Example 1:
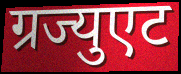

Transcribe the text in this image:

ग्रज्युएट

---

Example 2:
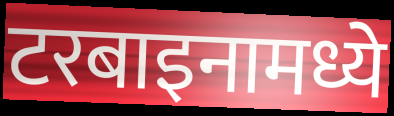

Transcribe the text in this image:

टरबाइनामध्ये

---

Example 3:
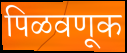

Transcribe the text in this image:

पिळवणूक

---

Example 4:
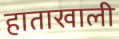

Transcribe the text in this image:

हाताखाली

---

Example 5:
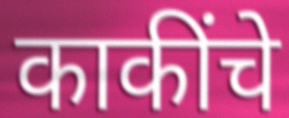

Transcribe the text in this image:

काकींचे